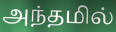
அந்தமில்